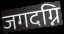
जगदग्नि